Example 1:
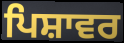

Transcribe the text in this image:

ਪਿਸ਼ਾਵਰ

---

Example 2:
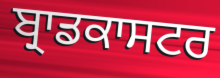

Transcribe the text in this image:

ਬ੍ਰਾਡਕਾਸਟਰ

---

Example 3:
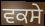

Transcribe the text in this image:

ਵਕਸੇ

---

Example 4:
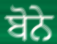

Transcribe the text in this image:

ਬੋਨੇ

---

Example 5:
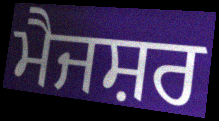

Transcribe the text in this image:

ਮੈਜਸ਼ਰ